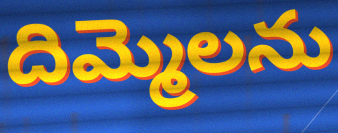
దిమ్మెలను